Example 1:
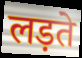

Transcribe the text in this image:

लड़ते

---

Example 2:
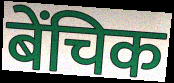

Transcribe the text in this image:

बेंचिक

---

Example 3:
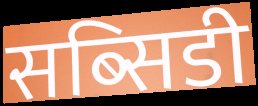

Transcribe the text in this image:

सब्सिडी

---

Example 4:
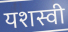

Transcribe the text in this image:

यशस्‍वी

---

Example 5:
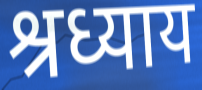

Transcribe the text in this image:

श्रध्याय